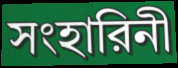
সংহারিনী